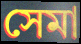
সেমা